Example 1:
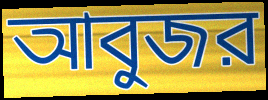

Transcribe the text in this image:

আবুজর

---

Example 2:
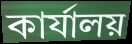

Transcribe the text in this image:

কার্যালয়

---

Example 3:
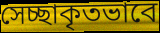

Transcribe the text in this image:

সেচ্ছাকৃতভাবে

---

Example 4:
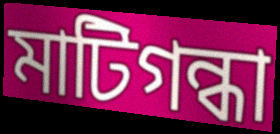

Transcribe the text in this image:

মাটিগন্ধা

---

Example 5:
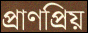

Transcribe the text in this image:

প্রাণপ্রিয়